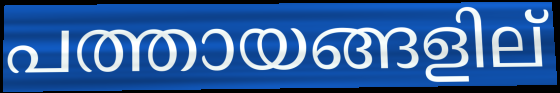
പത്തായങ്ങളില്